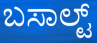
ಬಸಾಲ್ಟ್